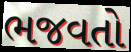
ભજવતો